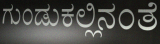
ಗುಂಡುಕಲ್ಲಿನಂತೆ